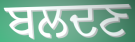
ਬਲਦਣ